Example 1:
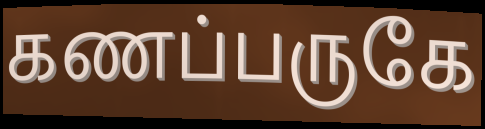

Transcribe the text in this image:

கணப்பருகே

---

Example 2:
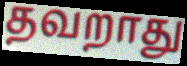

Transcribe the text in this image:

தவறாது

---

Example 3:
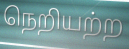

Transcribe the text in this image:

நெறியற்ற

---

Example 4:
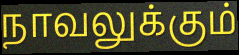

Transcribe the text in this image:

நாவலுக்கும்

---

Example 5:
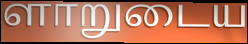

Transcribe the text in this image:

ளாறுடைய